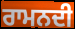
ਰਾਮਨਦੀ